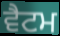
ਵੈਟਮ